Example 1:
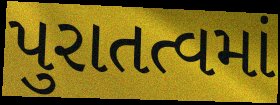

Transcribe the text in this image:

પુરાતત્વમાં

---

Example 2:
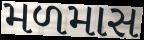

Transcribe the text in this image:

મળમાસ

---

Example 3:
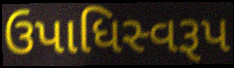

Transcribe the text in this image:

ઉપાધિસ્વરૂપ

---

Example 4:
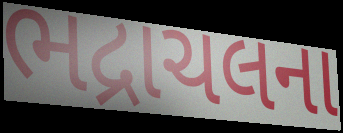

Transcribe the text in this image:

ભદ્રાચલના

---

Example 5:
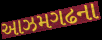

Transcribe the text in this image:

આઝમગઢના